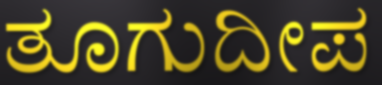
ತೂಗುದೀಪ